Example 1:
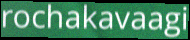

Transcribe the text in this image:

rochakavaagi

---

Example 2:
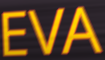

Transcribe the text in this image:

EVA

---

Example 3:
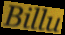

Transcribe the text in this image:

Billu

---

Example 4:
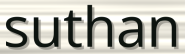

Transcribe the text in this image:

suthan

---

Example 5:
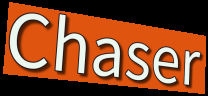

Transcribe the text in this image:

Chaser